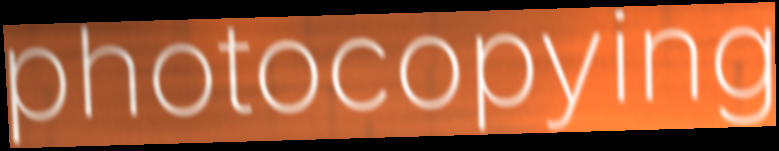
photocopying